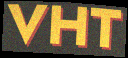
VHT